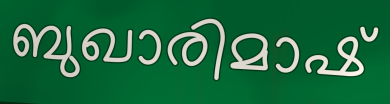
ബുഖാരിമാഷ്